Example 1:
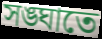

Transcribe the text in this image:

সঙ্ঘাতে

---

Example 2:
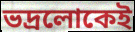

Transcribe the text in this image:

ভদ্রলোকেই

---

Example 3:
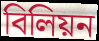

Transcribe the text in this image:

বিলিয়ন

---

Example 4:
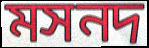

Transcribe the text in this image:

মসনদ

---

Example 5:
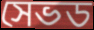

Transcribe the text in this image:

সেভড